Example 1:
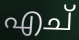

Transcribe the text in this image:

എച്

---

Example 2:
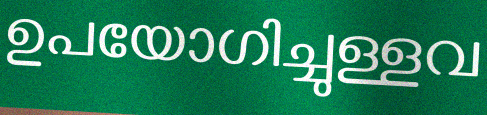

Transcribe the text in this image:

ഉപയോഗിച്ചുള്ളവ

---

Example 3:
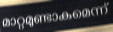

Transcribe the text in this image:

മാറ്റമുണ്ടാകുമെന്ന്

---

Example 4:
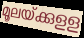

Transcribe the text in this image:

മൂലയ്‌ക്കുളള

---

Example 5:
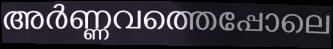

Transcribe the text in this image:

അർണ്ണവത്തെപ്പോലെ